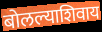
बोलल्याशिवाय